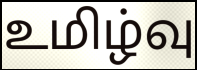
உமிழ்வு